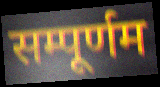
सम्पूर्णम